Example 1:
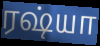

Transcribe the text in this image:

ரஷ்யா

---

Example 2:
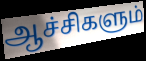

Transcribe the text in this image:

ஆச்சிகளும்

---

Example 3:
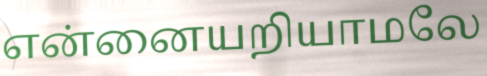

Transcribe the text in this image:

என்னையறியாமலே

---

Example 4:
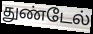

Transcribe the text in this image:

துண்டேல்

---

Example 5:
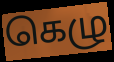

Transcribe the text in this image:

கெழு